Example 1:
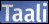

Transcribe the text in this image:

Taali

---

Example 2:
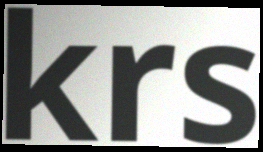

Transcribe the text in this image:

krs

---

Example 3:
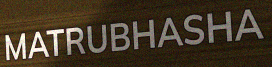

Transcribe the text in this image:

MATRUBHASHA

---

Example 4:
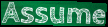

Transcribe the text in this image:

Assume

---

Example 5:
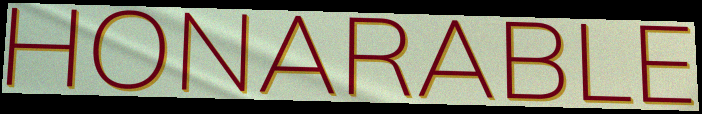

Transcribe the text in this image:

HONARABLE